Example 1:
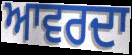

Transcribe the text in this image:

ਆਵਰਦਾ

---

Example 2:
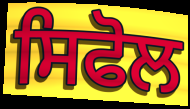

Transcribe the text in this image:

ਸਿਫੋਲ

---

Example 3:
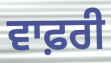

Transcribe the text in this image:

ਵਾਫ਼ਰੀ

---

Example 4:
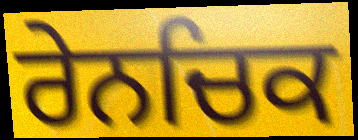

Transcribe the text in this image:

ਰੇਨਚਿਕ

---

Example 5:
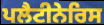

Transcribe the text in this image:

ਪਲੈਟੀਨੇਰਿਸ